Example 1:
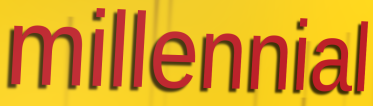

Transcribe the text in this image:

millennial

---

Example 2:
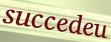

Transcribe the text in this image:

succedeu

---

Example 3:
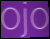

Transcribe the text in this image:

ojo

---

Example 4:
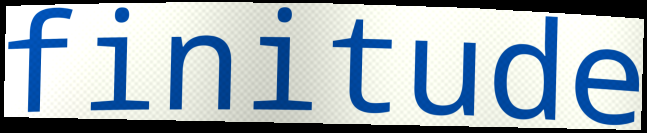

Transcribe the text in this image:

finitude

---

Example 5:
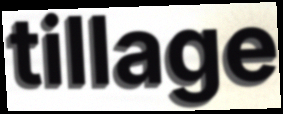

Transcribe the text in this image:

tillage